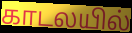
காடலயில்